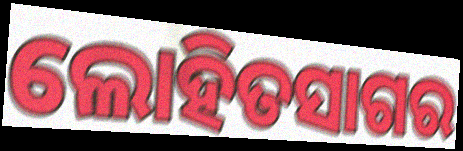
ଲୋହିତସାଗର